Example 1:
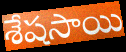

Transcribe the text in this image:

శేషసాయి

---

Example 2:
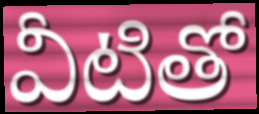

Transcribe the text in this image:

వీటితో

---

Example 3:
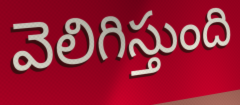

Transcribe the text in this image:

వెలిగిస్తుంది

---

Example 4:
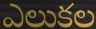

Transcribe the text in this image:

ఎలుకల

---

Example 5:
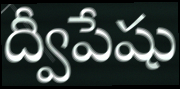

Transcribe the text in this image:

ద్వీపేషు